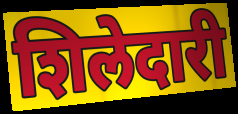
शिलेदारी